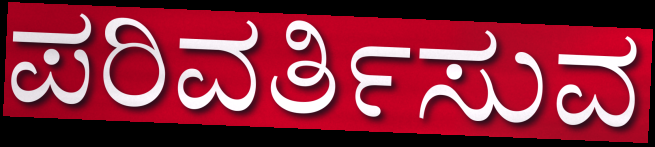
ಪರಿವರ್ತಿಸುವ